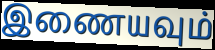
இணையவும்